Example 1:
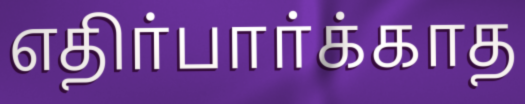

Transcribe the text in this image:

எதிர்பார்க்காத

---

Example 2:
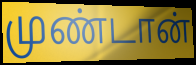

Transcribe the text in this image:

முண்டான்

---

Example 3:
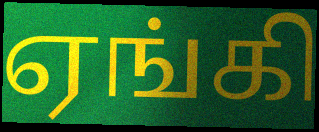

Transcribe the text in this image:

ஏங்கி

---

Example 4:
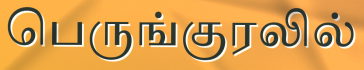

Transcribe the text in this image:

பெருங்குரலில்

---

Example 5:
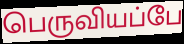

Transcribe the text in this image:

பெருவியப்பே